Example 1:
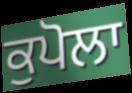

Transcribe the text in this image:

ਕੁਪੋਲਾ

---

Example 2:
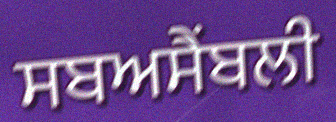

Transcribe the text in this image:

ਸਬਅਸੈਂਬਲੀ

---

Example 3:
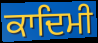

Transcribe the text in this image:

ਕਾਦਿਮੀ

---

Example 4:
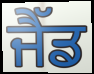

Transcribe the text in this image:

ਜੈੱਡ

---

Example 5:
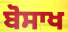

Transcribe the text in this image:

ਬੋਸਾਖ